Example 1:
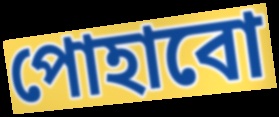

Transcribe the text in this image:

পোহাবো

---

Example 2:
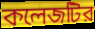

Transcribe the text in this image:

কলেজটির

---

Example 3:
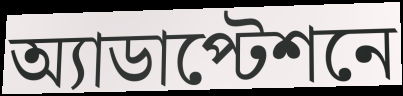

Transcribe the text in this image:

অ্যাডাপ্টেশনে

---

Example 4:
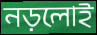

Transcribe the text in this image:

নড়লোই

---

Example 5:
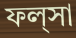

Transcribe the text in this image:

ফল্‌সা